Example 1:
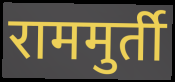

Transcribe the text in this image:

राममुर्ती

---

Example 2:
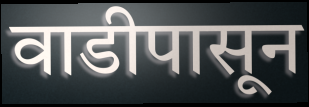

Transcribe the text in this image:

वाडीपासून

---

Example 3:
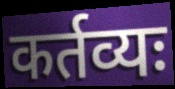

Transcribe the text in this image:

कर्तव्यः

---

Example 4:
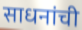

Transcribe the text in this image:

साधनांची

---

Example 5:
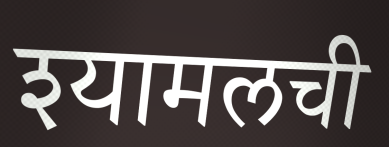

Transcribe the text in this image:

श्यामलची